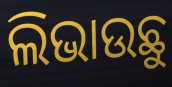
ଲିଭାଉଛୁ